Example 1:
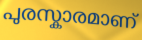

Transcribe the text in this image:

പുരസ്കാരമാണ്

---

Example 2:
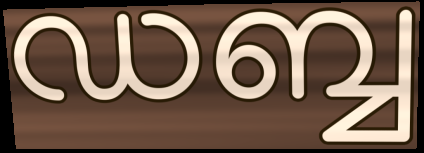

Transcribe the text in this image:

ഡബ്ബ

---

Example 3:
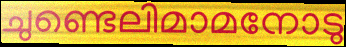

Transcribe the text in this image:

ചുണ്ടെലിമാമനോടു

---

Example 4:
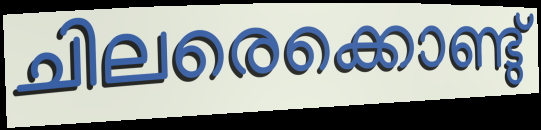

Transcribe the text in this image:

ചിലരെക്കൊണ്ടു്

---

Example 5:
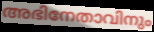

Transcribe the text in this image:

അഭിനേതാവിനും